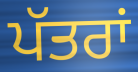
ਪੱਤਰਾਂ